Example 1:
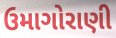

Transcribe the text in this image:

ઉમાગોરાણી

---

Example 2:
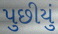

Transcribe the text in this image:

પુછીયું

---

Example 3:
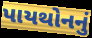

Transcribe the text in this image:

પાયથોનનું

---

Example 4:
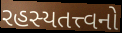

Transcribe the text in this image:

રહસ્યતત્ત્વનો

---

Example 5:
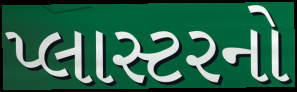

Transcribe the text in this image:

પ્લાસ્ટરનો